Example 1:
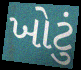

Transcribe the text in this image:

ખોટું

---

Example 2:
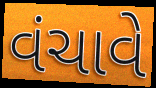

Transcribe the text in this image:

વંચાવે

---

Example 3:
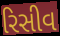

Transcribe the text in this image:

રિસીવ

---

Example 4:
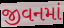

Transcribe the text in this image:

જીવનમાં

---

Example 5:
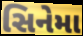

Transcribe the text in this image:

સિનેમા